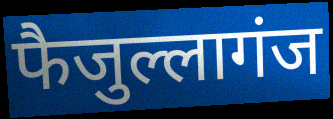
फैजुल्लागंज